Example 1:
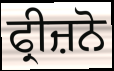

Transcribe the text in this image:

ਫ੍ਰੀਜ਼ਨੋ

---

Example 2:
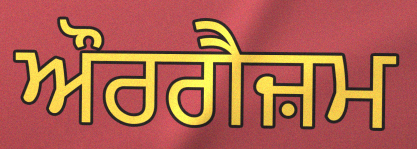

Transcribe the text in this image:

ਔਰਗੈਜ਼ਮ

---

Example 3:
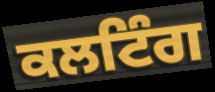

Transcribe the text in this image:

ਕਲਟਿੰਗ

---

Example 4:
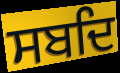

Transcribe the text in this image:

ਸਬਦਿ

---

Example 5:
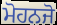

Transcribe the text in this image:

ਮੋਹਨਜੋ